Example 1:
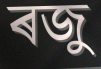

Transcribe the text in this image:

ৰজু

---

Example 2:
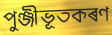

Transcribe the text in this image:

পুঞ্জীভূতকৰণ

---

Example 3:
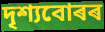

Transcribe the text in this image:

দৃশ্যবোৰৰ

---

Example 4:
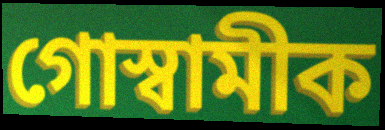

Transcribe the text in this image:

গোস্বামীক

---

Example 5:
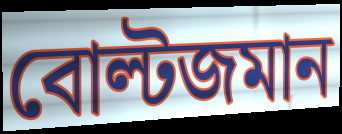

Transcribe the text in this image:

বোল্টজমান